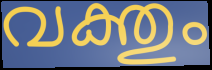
വക്തും